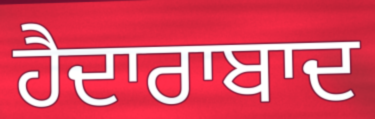
ਹੈਦਾਰਾਬਾਦ